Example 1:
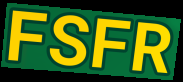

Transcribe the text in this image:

FSFR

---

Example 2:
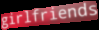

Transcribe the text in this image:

girlfriends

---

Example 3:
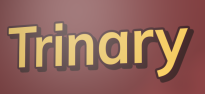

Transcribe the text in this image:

Trinary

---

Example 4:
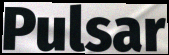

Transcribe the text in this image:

Pulsar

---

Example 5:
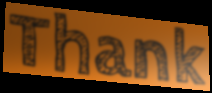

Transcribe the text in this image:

Thank